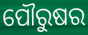
ପୌରୁଷର